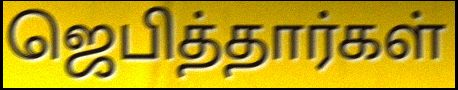
ஜெபித்தார்கள்